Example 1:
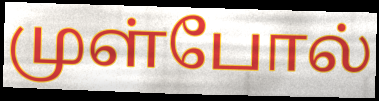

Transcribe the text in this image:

முள்போல்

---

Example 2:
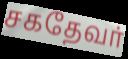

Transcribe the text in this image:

சகதேவர்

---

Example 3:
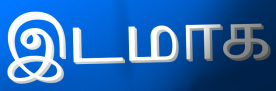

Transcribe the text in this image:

இடமாக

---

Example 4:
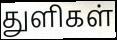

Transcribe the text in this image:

துளிகள்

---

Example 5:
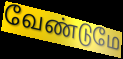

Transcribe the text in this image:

வேண்டுமே